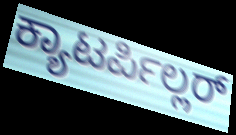
ಕ್ಯಾಟರ್ಪಿಲ್ಲರ್